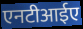
एनटीआईए